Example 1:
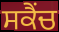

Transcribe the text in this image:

ਸਕੈਂਚ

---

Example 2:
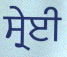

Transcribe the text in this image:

ਸ੍ਰੇਈ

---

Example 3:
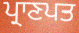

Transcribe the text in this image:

ਪ੍ਰਾਣਪਤ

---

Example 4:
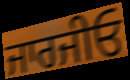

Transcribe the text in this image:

ਜਾਰਜੀਓ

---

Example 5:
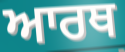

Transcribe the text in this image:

ਆਰਥ